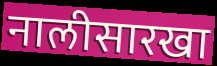
नालीसारखा